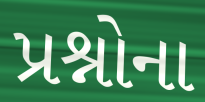
પ્રશ્નોના